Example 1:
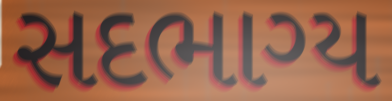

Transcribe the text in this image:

સદભાગ્ય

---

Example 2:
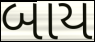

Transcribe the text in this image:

બાય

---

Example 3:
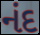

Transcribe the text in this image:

નંદ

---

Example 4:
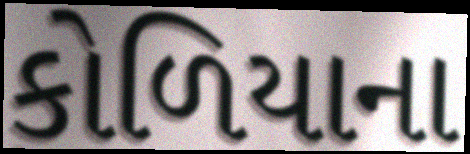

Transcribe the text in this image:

કોળિયાના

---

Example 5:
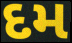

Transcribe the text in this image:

દમ